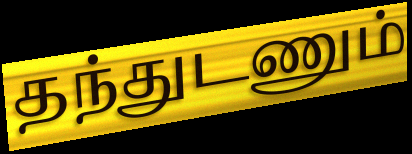
தந்துடணும்